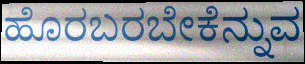
ಹೊರಬರಬೇಕೆನ್ನುವ